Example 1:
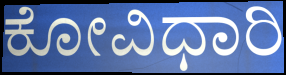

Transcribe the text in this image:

ಕೋವಿಧಾರಿ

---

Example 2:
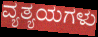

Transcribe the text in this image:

ವ್ಯತ್ಯಯಗಳು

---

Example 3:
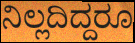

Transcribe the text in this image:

ನಿಲ್ಲದಿದ್ದರೂ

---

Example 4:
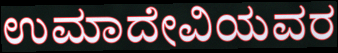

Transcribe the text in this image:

ಉಮಾದೇವಿಯವರ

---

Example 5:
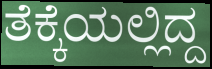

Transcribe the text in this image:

ತೆಕ್ಕೆಯಲ್ಲಿದ್ದ